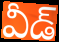
వీడ్